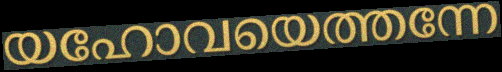
യഹോവയെത്തന്നേ